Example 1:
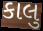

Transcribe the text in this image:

કાલુ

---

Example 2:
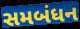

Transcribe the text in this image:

સમબંધન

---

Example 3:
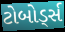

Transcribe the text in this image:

ટોબોર્ડ્સ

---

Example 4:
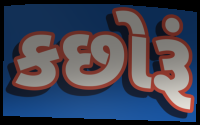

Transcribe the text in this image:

કછોરૂં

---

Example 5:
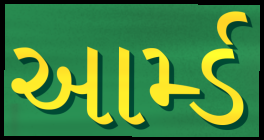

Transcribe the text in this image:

આર્મ્ડ